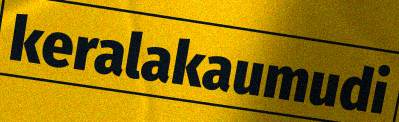
keralakaumudi